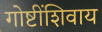
गोष्टींशिवाय